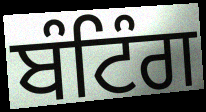
ਬੰਟਿੰਗ